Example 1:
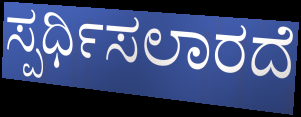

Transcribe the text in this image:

ಸ್ಪರ್ಧಿಸಲಾರದೆ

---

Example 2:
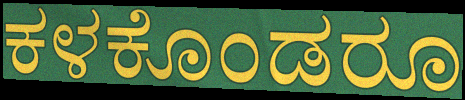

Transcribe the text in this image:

ಕಳಕೊಂಡರೂ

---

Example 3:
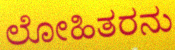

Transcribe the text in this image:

ಲೋಹಿತರನು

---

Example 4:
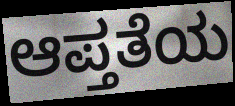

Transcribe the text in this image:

ಆಪ್ತತೆಯ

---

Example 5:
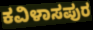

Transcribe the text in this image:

ಕವಿಳಾಸಪುರ